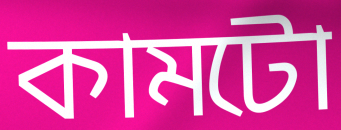
কামটো